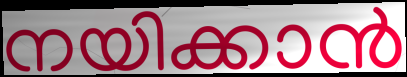
നയിക്കാൻ